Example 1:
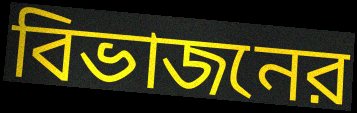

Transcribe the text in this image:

বিভাজনের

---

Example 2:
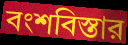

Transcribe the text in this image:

বংশবিস্তার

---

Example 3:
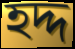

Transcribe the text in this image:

হদ্দ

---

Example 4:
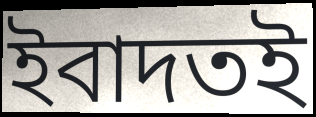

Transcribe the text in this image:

ইবাদতই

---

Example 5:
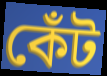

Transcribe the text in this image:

কেঁট